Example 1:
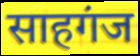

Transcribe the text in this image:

साहगंज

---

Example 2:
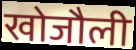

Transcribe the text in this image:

खोजौली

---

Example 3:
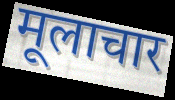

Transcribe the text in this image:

मूलाचार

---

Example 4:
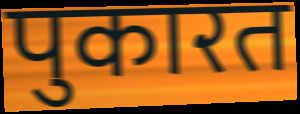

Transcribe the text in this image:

पुकारत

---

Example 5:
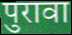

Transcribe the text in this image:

पुरावा